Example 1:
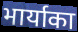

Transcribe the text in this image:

भार्याका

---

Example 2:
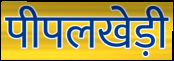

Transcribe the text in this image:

पीपलखेड़ी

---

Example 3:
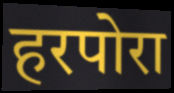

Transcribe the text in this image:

हरपोरा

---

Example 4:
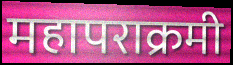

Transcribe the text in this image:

महापराक्रमी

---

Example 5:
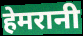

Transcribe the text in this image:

हेमरानी